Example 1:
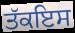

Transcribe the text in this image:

ਤੱਕਇਸ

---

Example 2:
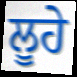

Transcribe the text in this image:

ਲੂਹੇ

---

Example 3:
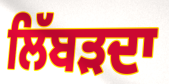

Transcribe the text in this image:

ਲਿੱਬੜਦਾ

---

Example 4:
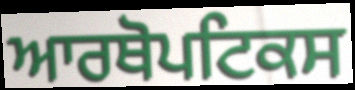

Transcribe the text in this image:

ਆਰਥੋਪਟਿਕਸ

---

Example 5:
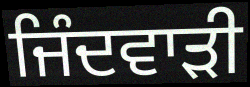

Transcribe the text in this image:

ਜਿੰਦਵਾੜੀ